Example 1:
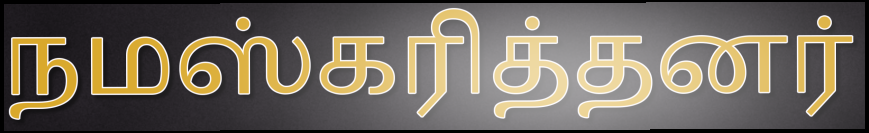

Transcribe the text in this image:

நமஸ்கரித்தனர்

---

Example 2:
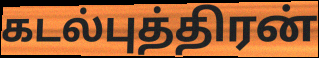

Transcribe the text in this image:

கடல்புத்திரன்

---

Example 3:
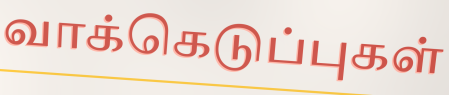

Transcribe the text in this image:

வாக்கெடுப்புகள்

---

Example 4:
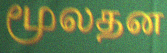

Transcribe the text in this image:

மூலதன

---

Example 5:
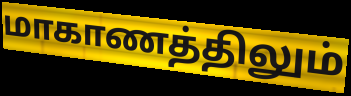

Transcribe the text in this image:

மாகாணத்திலும்